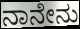
ನಾನೇನು